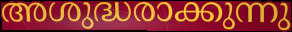
അശുദ്ധരാക്കുന്നു